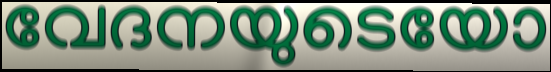
വേദനയുടെയോ